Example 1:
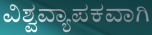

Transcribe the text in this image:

ವಿಶ್ವವ್ಯಾಪಕವಾಗಿ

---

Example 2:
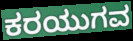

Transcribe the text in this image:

ಕರಯುಗವ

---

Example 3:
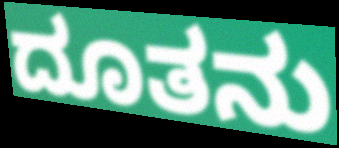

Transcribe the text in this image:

ದೂತನು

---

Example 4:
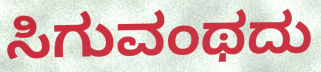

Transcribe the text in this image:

ಸಿಗುವಂಥದು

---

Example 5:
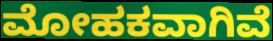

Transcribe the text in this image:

ಮೋಹಕವಾಗಿವೆ